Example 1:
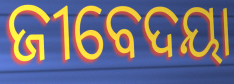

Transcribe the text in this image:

ଜୀବେଦୟା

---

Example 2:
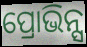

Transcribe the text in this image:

ପ୍ରୋଭିନ୍ସ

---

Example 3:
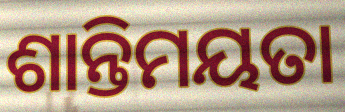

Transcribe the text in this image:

ଶାନ୍ତିମୟତା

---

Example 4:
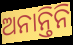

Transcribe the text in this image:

ଅନାନ୍ତିନି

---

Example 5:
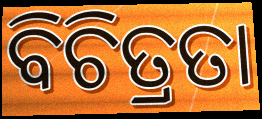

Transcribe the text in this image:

ବିଚିତ୍ରତା